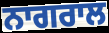
ਨਾਗਰਾਲ